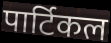
पार्टिकल